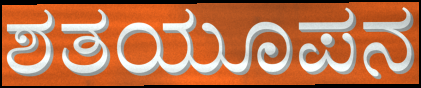
ಶತಯೂಪನ